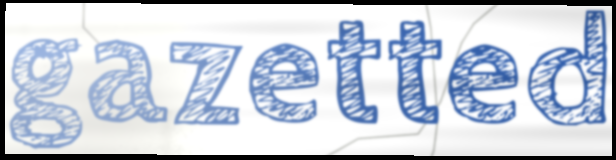
gazetted